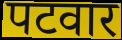
पटवार